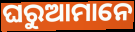
ଘରୁଆମାନେ